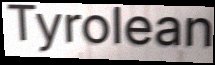
Tyrolean